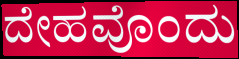
ದೇಹವೊಂದು